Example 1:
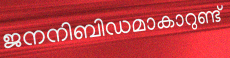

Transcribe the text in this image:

ജനനിബിഡമാകാറുണ്ട്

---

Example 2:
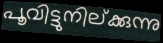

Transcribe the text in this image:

പൂവിട്ടുനില്ക്കുന്നു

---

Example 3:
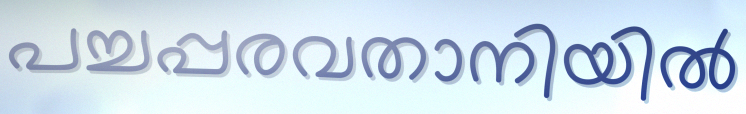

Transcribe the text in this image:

പച്ചപ്പരവതാനിയിൽ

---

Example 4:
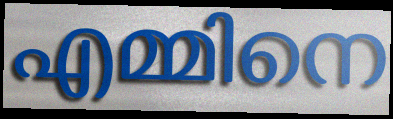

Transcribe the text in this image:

എമ്മിനെ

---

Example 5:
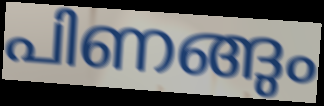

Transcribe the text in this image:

പിണങ്ങും